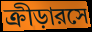
ক্রীড়ারসে